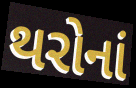
થરોનાં